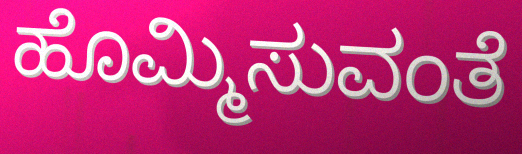
ಹೊಮ್ಮಿಸುವಂತೆ